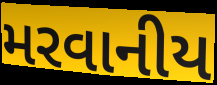
મરવાનીય